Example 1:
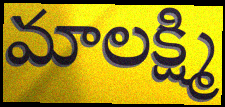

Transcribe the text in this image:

మాలక్ష్మి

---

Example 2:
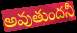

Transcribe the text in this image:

అవుతుందనీ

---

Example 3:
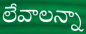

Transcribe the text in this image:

లేవాలన్నా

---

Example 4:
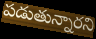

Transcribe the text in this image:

పడుతున్నారని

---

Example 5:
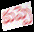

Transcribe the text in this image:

కుప్పె